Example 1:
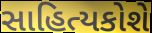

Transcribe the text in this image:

સાહિત્યકોશે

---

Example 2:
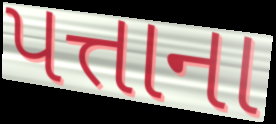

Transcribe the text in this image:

પત્તાના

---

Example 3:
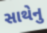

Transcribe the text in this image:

સાથેનુ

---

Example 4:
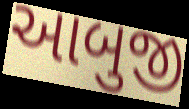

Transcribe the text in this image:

આબુજી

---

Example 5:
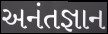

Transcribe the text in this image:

અનંતજ્ઞાન